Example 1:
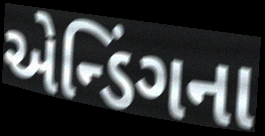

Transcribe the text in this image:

એન્ડિંગના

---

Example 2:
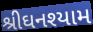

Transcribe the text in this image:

શ્રીઘનશ્યામ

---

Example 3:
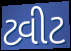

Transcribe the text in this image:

ટ્વીટ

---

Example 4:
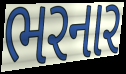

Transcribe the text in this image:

ભરનાર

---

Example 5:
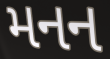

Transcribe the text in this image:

મનન